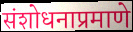
संशोधनाप्रमाणे